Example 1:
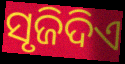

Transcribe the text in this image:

ସୃଜିଦିଏ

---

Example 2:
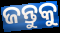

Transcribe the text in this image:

ଜନ୍ତୁକୁ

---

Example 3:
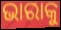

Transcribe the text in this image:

ଭାରାକୁ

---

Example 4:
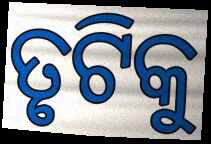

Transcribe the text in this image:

ତୃଟିକୁ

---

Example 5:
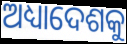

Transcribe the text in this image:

ଅଧ୍ୟାଦେଶକୁ